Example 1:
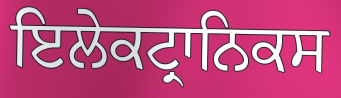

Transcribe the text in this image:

ਇਲੇਕਟ੍ਰਾਨਿਕਸ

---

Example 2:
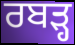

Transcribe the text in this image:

ਰਬੜ੍ਹ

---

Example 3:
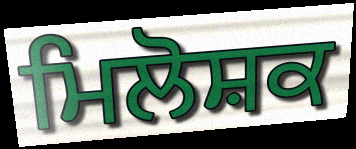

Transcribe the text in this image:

ਮਿਲੋਸ਼ਕ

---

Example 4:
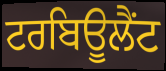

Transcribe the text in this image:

ਟਰਬਿਊਲੈਂਟ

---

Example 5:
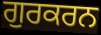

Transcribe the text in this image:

ਗੁਰਕਰਨ